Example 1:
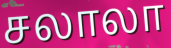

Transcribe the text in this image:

சலாலா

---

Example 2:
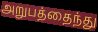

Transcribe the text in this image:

அறுபத்தைந்து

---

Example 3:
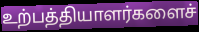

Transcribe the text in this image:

உற்பத்தியாளர்களைச்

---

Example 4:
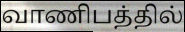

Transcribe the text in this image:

வாணிபத்தில்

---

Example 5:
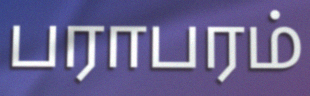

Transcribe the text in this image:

பராபரம்